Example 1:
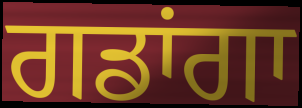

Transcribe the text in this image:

ਗਡਾਂਗਾ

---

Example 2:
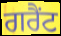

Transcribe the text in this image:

ਗਰੈਂਟ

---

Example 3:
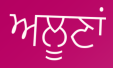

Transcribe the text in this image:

ਅਲੂਣਾਂ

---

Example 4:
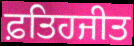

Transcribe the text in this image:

ਫ਼ਤਿਹਜੀਤ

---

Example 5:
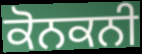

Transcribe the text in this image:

ਕੋਨਕਨੀ